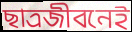
ছাত্রজীবনেই